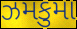
ઝમકુમા